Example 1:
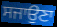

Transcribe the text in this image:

ਸਜਾਉਣਾ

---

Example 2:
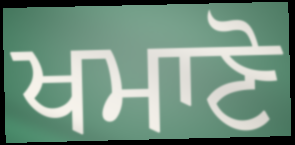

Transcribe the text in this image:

ਖਮਾਣੋ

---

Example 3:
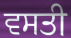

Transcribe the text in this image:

ਵਸਤੀ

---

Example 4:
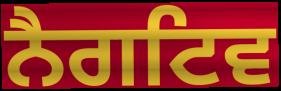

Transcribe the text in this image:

ਨੈਗਟਿਵ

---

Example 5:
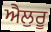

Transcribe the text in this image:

ਐਲੁਰੂ